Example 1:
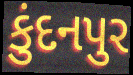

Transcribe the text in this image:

કુંદનપુર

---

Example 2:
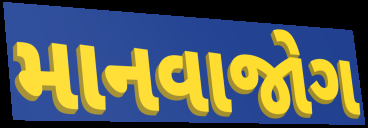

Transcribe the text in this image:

માનવાજોગ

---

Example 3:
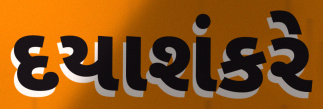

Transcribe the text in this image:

દયાશંકરે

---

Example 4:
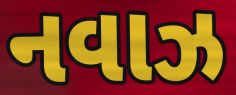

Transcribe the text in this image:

નવાઝ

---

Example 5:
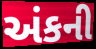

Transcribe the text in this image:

અંકની